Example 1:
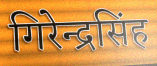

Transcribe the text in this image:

गिरेन्द्रसिंह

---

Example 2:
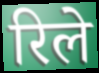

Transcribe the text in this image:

रिले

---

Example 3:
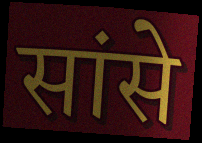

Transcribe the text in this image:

सांसे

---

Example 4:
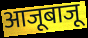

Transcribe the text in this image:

आजूबाजू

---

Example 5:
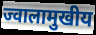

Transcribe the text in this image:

ज्वालामुखीय